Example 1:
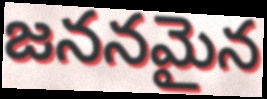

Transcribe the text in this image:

జననమైన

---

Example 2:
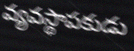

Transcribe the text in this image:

వ్యవస్థాపకుడు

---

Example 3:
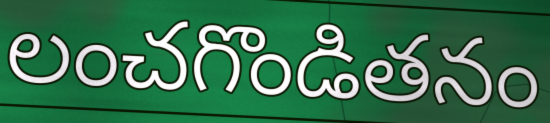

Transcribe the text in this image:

లంచగొండితనం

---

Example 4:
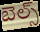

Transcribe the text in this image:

బెల్స్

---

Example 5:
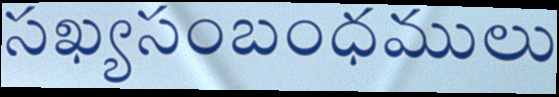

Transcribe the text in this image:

సఖ్యసంబంధములు